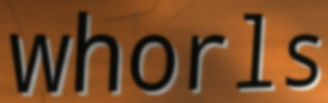
whorls